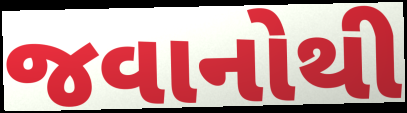
જવાનોથી